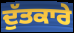
ਦੁੱਤਕਾਰੇ